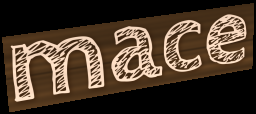
mace